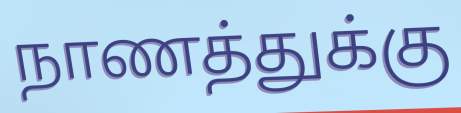
நாணத்துக்கு